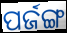
ପର୍ଜଙ୍ଗ